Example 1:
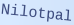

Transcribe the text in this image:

Nilotpal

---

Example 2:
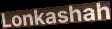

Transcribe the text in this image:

Lonkashah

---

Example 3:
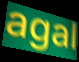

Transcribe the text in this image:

agal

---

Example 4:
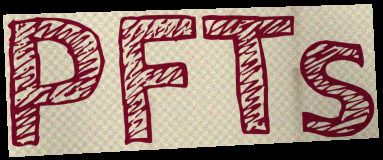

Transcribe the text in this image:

PFTs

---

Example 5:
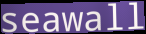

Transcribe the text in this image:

seawall